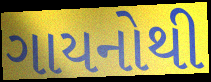
ગાયનોથી